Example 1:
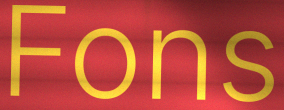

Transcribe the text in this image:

Fons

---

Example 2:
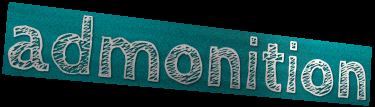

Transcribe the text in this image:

admonition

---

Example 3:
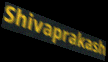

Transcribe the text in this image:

Shivaprakash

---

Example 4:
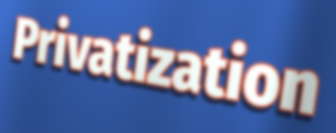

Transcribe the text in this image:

Privatization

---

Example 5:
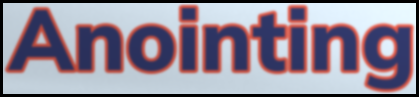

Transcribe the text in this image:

Anointing